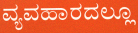
ವ್ಯವಹಾರದಲ್ಲೂ